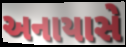
અનાયાસે